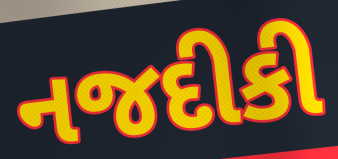
નજદીકી